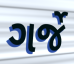
ગર્જે